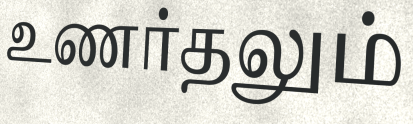
உணர்தலும்